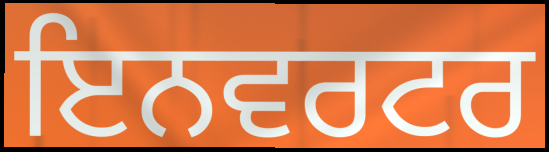
ਇਨਵਰਟਰ